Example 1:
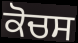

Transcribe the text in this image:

ਕੋਚਸ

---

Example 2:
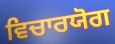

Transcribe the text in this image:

ਵਿਚਾਰਯੋਗ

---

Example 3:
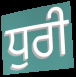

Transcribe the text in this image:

ਧੁਰੀ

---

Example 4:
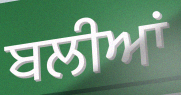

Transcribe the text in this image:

ਬਲੀਆਂ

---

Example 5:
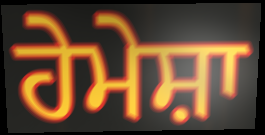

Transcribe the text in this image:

ਹੇਮੇਸ਼ਾ